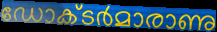
ഡോക്ടർമാരാണു